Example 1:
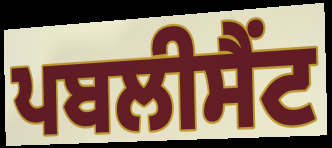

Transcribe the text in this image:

ਪਬਲੀਸੈਂਟ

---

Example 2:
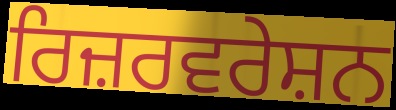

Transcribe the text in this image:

ਰਿਜ਼ਰਵਰੇਸ਼ਨ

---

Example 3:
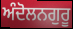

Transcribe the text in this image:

ਅੰਦੋਲਨਗੁਰੂ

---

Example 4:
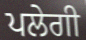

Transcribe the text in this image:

ਪਲੇਗੀ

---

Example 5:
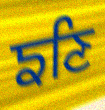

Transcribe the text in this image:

ਙਣਿ